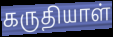
கருதியாள்